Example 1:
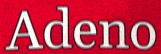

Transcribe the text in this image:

Adeno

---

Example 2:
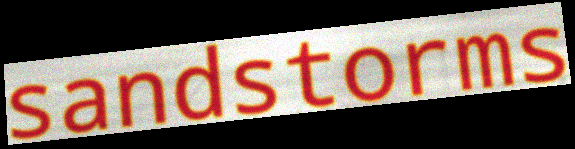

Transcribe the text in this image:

sandstorms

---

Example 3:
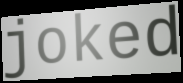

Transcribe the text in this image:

joked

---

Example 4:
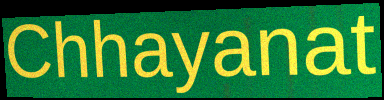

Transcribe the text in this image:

Chhayanat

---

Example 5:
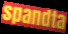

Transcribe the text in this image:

spandta